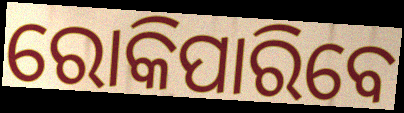
ରୋକିପାରିବେ